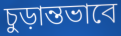
চুড়ান্তভাবে